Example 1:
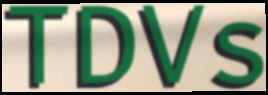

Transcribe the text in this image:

TDVs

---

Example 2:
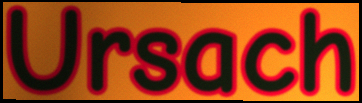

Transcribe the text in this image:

Ursach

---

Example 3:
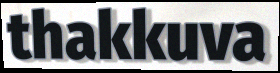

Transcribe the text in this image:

thakkuva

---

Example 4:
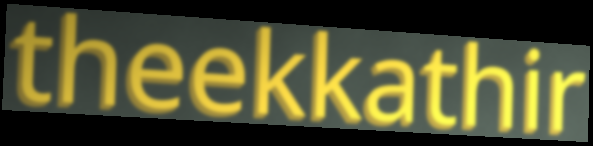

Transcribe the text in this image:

theekkathir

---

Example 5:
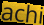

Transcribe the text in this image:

achi